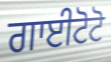
ਗਾਈਟੋਟੋ